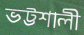
ভট্টশালী